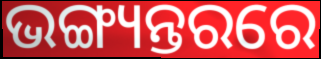
ଭଙ୍ଗ୍ୟନ୍ତରରେ